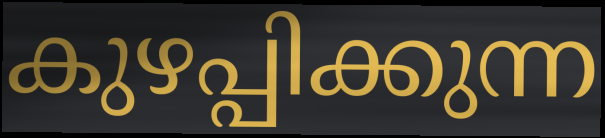
കുഴപ്പിക്കുന്ന